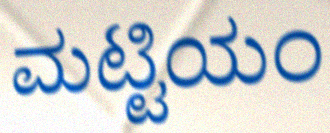
ಮಟ್ಟಿಯಂ